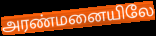
அரண்மனையிலே